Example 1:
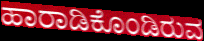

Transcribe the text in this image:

ಹಾರಾಡಿಕೊಂಡಿರುವ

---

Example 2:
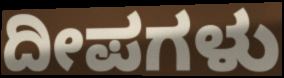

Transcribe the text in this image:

ದೀಪಗಳು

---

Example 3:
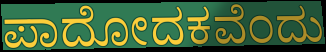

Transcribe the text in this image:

ಪಾದೋದಕವೆಂದು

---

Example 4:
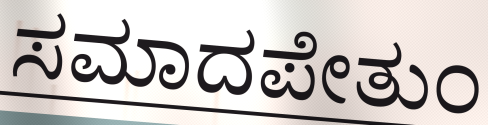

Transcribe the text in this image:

ಸಮಾದಪೇತುಂ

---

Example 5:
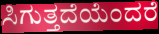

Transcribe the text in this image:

ಸಿಗುತ್ತದೆಯೆಂದರೆ